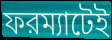
ফরম্যাটেই